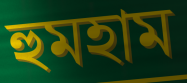
হুমহাম